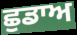
ਛੁਡਾਅ